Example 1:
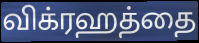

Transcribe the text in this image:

விக்ரஹத்தை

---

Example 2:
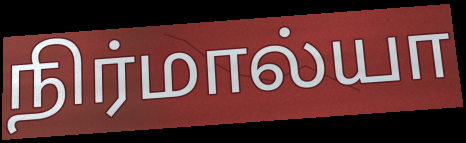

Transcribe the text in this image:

நிர்மால்யா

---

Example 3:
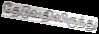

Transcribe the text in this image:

தேடுவதிலிருந்து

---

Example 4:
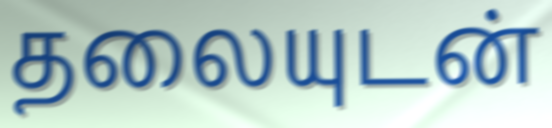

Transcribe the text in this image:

தலையுடன்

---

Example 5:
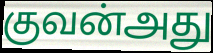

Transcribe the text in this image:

குவன்அது